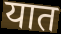
यात